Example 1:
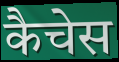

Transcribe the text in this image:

कैचेस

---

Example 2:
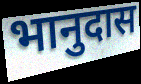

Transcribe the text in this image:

भानुदास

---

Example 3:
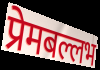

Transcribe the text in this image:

प्रेमबल्लभ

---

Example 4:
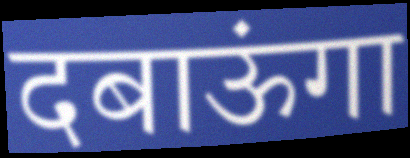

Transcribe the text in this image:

दबाऊंगा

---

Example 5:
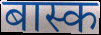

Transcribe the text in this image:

बास्क